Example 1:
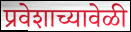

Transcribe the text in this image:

प्रवेशाच्यावेळी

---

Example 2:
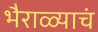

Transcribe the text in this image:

भैराळ्याचं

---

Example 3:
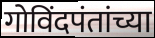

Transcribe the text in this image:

गोविंदपंतांच्या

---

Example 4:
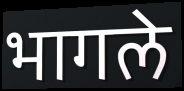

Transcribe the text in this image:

भागले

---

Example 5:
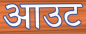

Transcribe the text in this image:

आउट